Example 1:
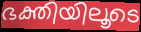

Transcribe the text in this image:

ഭക്തിയിലൂടെ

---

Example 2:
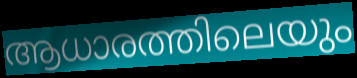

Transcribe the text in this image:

ആധാരത്തിലെയും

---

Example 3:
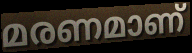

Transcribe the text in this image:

മരണമാണ്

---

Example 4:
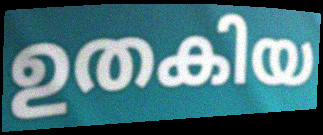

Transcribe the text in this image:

ഉതകിയ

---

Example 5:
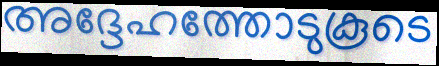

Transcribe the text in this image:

അദ്ദേഹത്തോടുകൂടെ